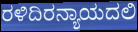
ರಳಿದಿರನ್ಯಾಯದಲಿ